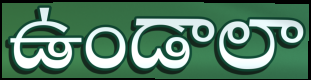
ఉండాలా